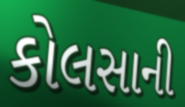
કોલસાની